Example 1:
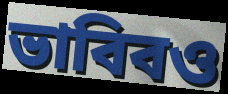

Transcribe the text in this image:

ভাবিবও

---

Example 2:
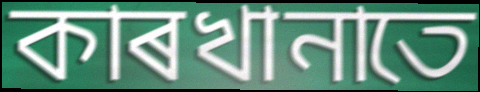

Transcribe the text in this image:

কাৰখানাতে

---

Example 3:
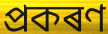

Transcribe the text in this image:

প্ৰকৰণ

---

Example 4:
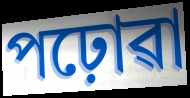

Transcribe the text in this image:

পঢ়োৱা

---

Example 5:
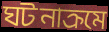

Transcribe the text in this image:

ঘটনাক্ৰমে